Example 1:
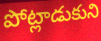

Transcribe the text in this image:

పోట్లాడుకుని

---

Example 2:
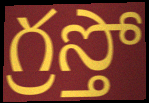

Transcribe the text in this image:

గ్రస్తో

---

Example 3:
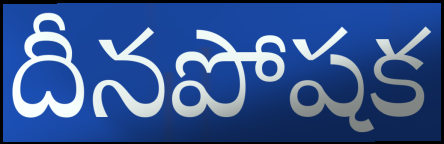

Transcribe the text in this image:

దీనపోషక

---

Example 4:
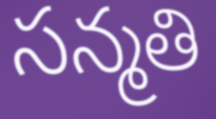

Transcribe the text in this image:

సన్మతి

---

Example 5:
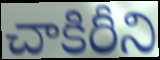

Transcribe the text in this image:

చాకిరీని